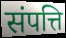
संपत्ति